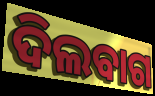
ଦିଲବାଗ